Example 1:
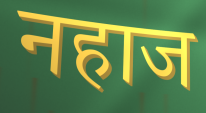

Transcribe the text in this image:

नहाज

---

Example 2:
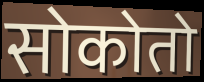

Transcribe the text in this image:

सोकोतो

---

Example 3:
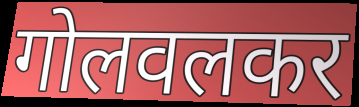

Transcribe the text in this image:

गोलवलकर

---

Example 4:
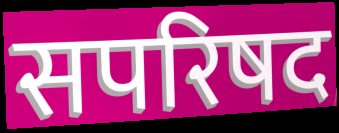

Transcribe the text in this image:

सपरिषद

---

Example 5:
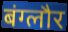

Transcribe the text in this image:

बंग्लौर